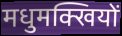
मधुमक्खियों